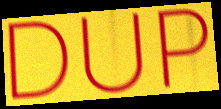
DUP